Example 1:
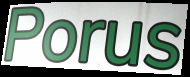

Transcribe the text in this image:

Porus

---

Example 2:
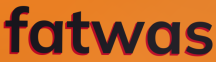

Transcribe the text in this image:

fatwas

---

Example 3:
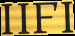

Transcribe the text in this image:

IIFI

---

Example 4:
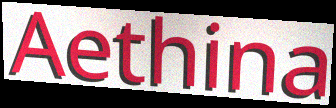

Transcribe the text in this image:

Aethina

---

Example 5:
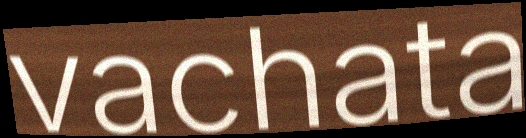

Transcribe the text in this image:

vachata